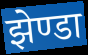
झेण्डा